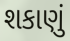
શકાણું